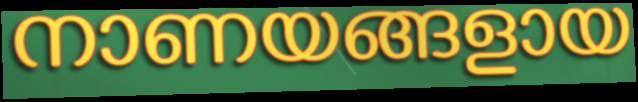
നാണയങ്ങളായ